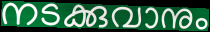
നടക്കുവാനും